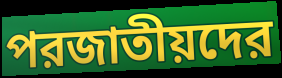
পরজাতীয়দের